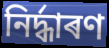
নিৰ্দ্ধাৰণ